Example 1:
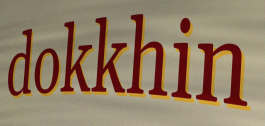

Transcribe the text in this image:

dokkhin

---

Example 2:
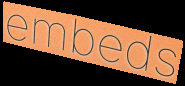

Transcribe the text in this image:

embeds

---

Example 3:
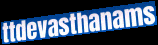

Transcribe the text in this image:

ttdevasthanams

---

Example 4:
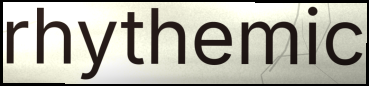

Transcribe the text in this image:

rhythemic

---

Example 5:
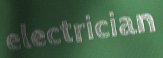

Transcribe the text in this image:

electrician